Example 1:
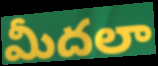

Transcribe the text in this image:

మీదలా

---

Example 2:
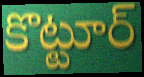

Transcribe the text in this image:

కొట్టూర్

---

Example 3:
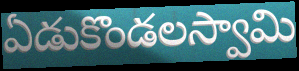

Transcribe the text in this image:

ఏడుకొండలస్వామి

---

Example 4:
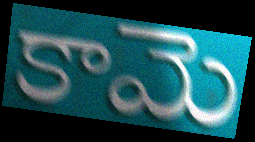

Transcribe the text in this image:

కామె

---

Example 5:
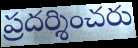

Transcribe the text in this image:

ప్రదర్శించరు